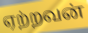
ஏற்றவன்